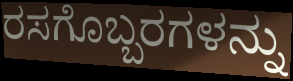
ರಸಗೊಬ್ಬರಗಳನ್ನು